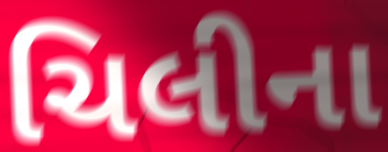
ચિલીના